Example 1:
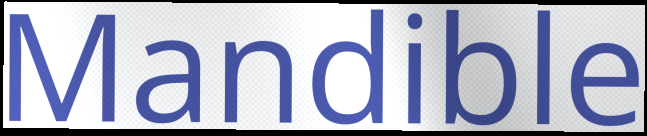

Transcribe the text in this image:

Mandible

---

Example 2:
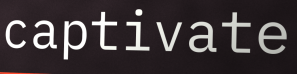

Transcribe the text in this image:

captivate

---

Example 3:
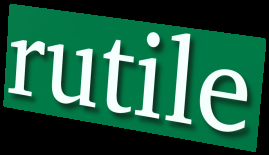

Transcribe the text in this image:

rutile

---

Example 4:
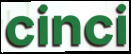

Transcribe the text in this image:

cinci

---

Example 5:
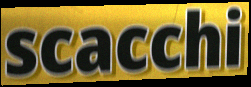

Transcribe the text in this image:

scacchi